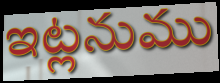
ఇట్లనుము